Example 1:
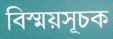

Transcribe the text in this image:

বিস্ময়সূচক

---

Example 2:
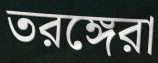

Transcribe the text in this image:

তরঙ্গেরা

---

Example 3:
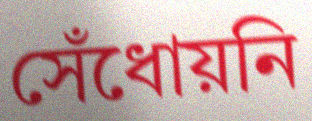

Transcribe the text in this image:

সেঁধোয়নি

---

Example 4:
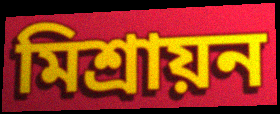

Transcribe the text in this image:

মিশ্রায়ন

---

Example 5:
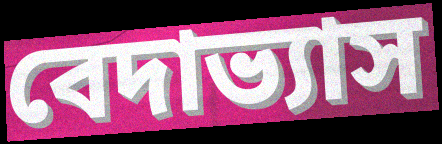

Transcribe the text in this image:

বেদাভ্যাস